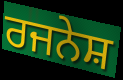
ਰਜਨੇਸ਼